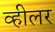
व्हीलर